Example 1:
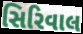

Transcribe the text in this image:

સિરિવાલ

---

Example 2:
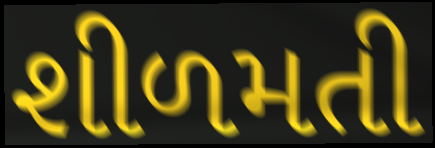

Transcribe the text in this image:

શીળમતી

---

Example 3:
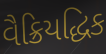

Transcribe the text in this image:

વૈક્રિયદ્ધિક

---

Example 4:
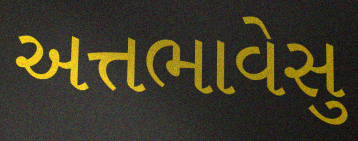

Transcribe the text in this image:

અત્તભાવેસુ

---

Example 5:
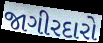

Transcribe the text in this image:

જાગીરદારો